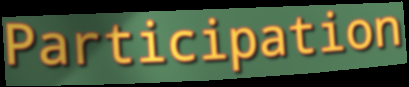
Participation